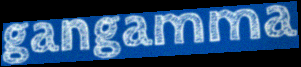
gangamma